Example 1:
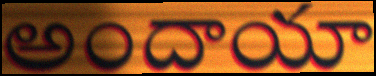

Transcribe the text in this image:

అందాయా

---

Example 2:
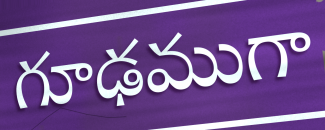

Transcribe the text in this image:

గూఢముగా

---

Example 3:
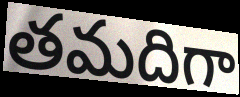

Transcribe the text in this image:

తమదిగా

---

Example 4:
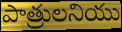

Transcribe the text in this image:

పాత్రులనియు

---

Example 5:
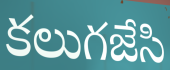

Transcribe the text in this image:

కలుగజేసి